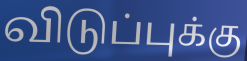
விடுப்புக்கு